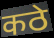
कठे